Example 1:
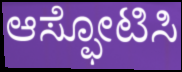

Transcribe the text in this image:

ಆಸ್ಫೋಟಿಸಿ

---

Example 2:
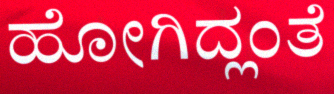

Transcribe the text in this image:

ಹೋಗಿದ್ಲಂತೆ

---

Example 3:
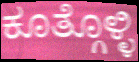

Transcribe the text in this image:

ಕೂತ್ಗೊಳ್ಳಿ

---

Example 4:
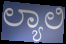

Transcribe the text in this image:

ಲ್ಯಾಲಿ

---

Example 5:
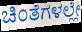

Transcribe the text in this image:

ಚಿಂತೆಗಳಲ್ಲೇ